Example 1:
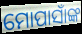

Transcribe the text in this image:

ମୋପାସାଁଙ୍କ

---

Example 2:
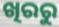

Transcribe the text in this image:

ଖିରରୁ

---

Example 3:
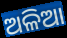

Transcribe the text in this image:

ଅଳିଆ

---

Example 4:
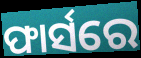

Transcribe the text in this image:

ଫାର୍ସରେ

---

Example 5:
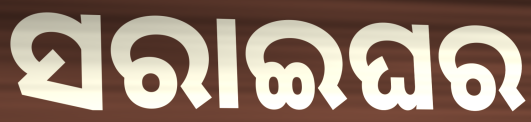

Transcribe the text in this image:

ସରାଇଘର